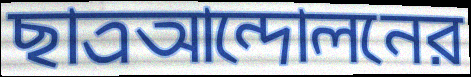
ছাত্রআন্দোলনের